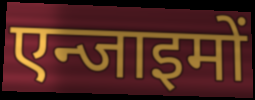
एन्जाइमों